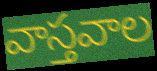
వాస్తవాల